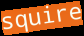
squire